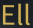
Ell